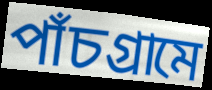
পাঁচগ্রামে